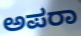
ಅಪರಾ